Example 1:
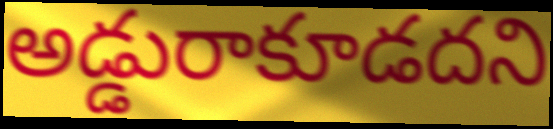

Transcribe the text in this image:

అడ్డురాకూడదని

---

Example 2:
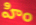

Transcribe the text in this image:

హిం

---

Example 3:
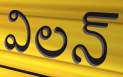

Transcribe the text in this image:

విలన్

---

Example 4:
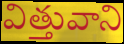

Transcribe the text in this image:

విత్తువాని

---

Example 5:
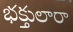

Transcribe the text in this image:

భక్తులారా